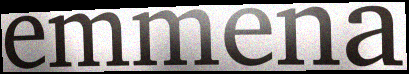
emmena